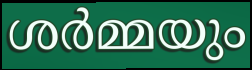
ശർമ്മയും